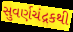
સુવર્ણચંદ્રકથી